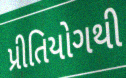
પ્રીતિયોગથી